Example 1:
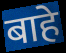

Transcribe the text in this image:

बाहे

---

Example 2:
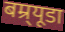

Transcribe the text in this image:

बम्र्यूडा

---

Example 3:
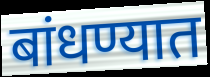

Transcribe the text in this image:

बांधण्यात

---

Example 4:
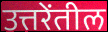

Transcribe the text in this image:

उत्तरेंतील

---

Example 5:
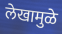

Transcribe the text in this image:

लेखामुळे